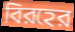
বিরহের